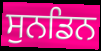
ਸੁਨਡਿਨ